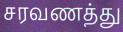
சரவணத்து